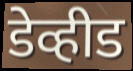
डेव्हीड